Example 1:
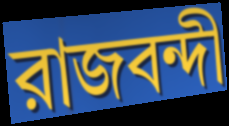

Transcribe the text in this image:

রাজবন্দী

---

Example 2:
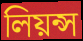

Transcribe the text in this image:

লিয়ন্স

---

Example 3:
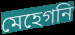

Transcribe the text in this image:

মেহেগনি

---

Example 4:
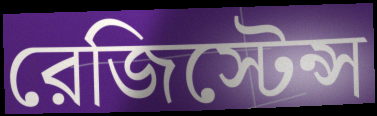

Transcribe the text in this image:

রেজিস্টেন্স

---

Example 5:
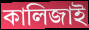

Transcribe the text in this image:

কালিজাই